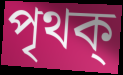
পৃথক্